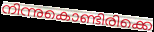
നിന്നുകൊണ്ടിരിക്കെ